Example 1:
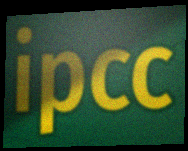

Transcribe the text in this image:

ipcc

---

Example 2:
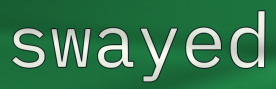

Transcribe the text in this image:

swayed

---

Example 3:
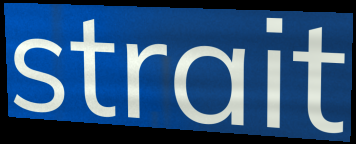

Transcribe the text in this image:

strait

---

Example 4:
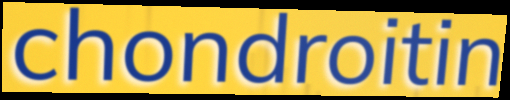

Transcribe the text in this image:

chondroitin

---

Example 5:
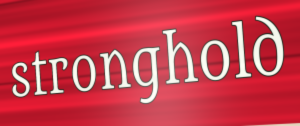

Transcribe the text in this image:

stronghold